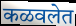
कळवलेत